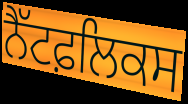
ਨੈੱਟਫ਼ਲਿਕਸ